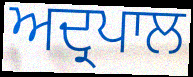
ਅਦ੍ਰਪਾਲ